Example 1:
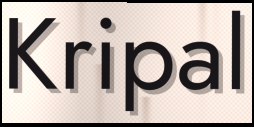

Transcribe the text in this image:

Kripal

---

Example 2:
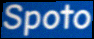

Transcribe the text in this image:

Spoto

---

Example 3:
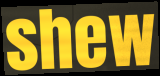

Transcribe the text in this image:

shew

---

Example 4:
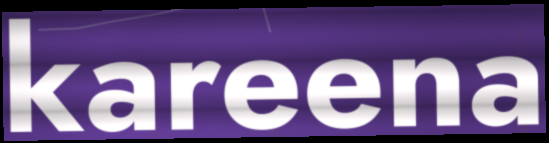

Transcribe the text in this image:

kareena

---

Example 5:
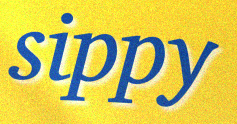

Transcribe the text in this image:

sippy